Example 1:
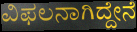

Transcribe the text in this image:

ವಿಫಲನಾಗಿದ್ದೇನೆ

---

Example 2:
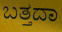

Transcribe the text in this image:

ಬತ್ತದಾ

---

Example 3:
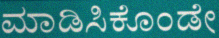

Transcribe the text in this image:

ಮಾಡಿಸಿಕೊಂಡೇ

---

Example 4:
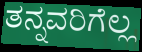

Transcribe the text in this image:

ತನ್ನವರಿಗೆಲ್ಲ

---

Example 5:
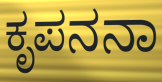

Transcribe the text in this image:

ಕೃಪನನಾ